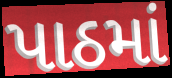
પાઠમાં